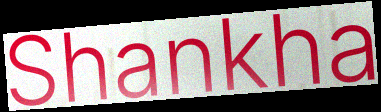
Shankha